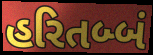
હરિતબ્બં